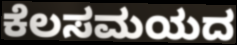
ಕೆಲಸಮಯದ